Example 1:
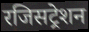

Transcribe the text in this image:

रजिसट्रेशन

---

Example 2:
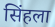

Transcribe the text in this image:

सिंहला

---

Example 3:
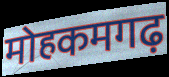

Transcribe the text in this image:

मोहकमगढ़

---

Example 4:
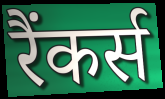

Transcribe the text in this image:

रैंकर्स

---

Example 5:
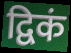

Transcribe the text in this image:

द्विकं